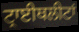
ਟ੍ਰਾਈਥਲੀਟਾਂ